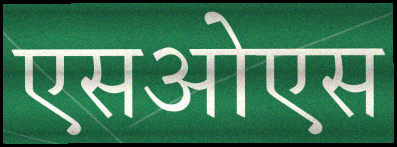
एसओएस